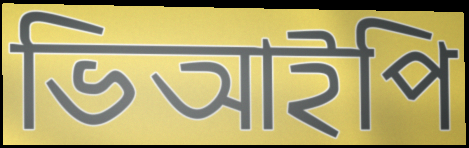
ভিআইপি